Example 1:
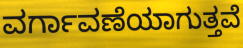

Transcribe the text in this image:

ವರ್ಗಾವಣೆಯಾಗುತ್ತವೆ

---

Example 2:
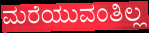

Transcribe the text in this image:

ಮರೆಯುವಂತಿಲ್ಲ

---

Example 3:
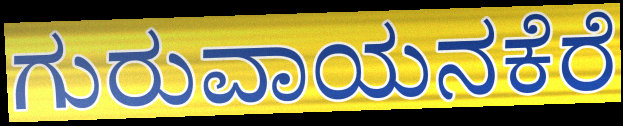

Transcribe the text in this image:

ಗುರುವಾಯನಕೆರೆ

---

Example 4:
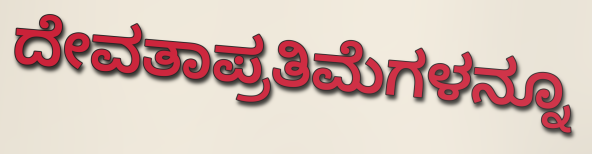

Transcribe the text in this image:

ದೇವತಾಪ್ರತಿಮೆಗಳನ್ನೂ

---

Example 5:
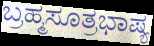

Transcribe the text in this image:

ಬ್ರಹ್ಮಸೂತ್ರಭಾಷ್ಯ